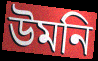
উমনি